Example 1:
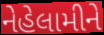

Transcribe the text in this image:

નેહેલામીને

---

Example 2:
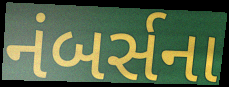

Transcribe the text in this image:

નંબર્સના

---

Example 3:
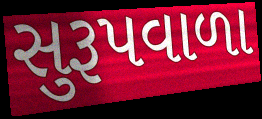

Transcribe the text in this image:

સુરૂપવાળા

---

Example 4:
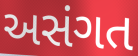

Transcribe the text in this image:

અસંગત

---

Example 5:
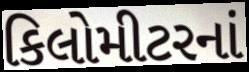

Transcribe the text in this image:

કિલોમીટરનાં